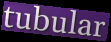
tubular